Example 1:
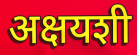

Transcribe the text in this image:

अक्षयशी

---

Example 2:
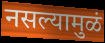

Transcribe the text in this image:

नसल्यामुळं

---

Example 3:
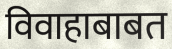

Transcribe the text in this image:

विवाहाबाबत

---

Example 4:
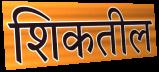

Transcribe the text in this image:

शिकतील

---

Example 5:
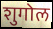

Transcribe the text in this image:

शुगोल